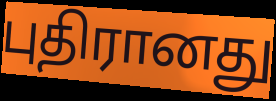
புதிரானது